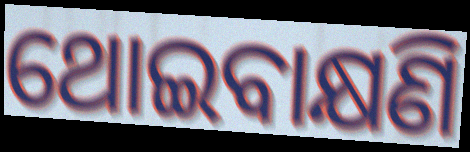
ଥୋଇବାକ୍ଷଣି